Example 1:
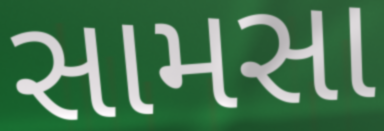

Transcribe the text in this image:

સામસા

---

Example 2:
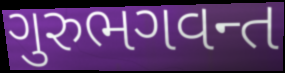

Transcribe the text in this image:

ગુરુભગવન્ત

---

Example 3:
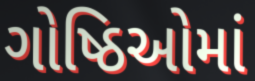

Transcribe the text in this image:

ગોષ્ઠિઓમાં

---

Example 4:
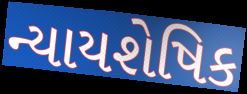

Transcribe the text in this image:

ન્યાયશેષિક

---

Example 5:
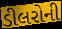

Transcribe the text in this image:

ડીલરોની